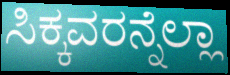
ಸಿಕ್ಕವರನ್ನೆಲ್ಲಾ